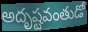
అదృష్టవంతుడో